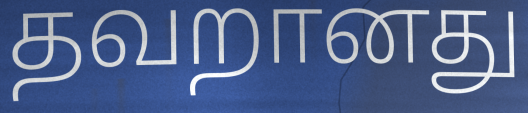
தவறானது